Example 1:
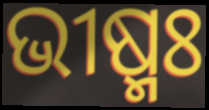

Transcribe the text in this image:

ଭୀଷ୍ମଃ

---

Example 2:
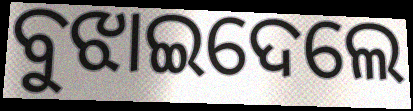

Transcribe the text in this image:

ବୁଝାଇଦେଲେ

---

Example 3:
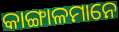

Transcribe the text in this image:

କାଙ୍ଗାଳମାନେ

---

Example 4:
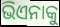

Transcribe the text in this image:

ଭିଏନାକୁ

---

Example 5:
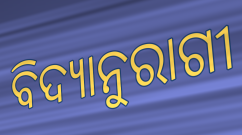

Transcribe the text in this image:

ବିଦ୍ୟାନୁରାଗୀ